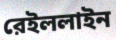
রেইললাইন